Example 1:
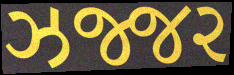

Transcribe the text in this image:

ઝજ્જર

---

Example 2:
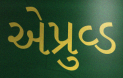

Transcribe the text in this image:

એપ્રુવ્ડ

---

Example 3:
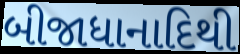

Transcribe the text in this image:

બીજાધાનાદિથી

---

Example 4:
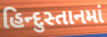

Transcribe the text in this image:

હિન્દુસ્તાનમાં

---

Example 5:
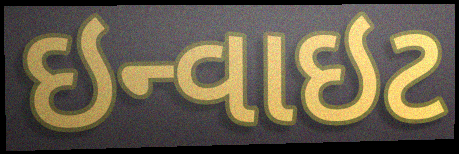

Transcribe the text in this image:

ઇન્વાઇટ